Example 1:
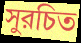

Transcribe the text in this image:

সুরচিত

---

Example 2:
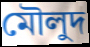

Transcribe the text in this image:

মৌলুদ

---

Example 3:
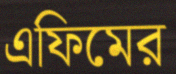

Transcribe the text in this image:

এফিমের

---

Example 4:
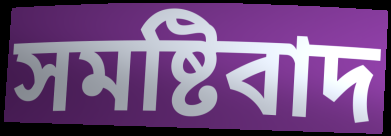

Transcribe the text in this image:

সমষ্টিবাদ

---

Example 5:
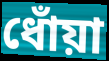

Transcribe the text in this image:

ধোঁয়া